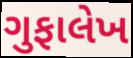
ગુફાલેખ